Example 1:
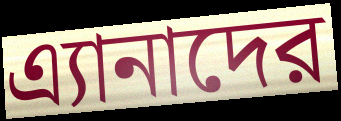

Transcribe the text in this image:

এ্যানাদের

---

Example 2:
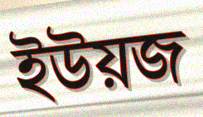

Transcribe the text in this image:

ইউয়জ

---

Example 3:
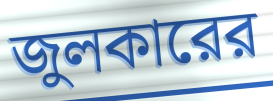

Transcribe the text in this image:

জুলকারের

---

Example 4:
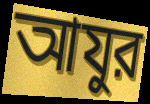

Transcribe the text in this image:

আযুর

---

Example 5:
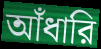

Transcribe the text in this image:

আঁধারি